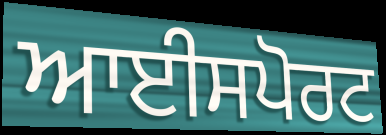
ਆਈਸਪੋਰਟ